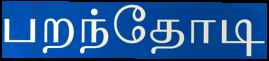
பறந்தோடி